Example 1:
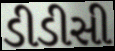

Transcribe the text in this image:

ડીડીસી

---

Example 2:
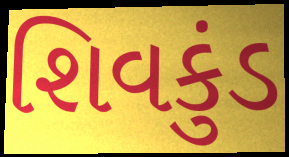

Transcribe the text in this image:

શિવકુંડ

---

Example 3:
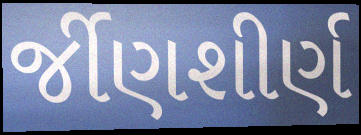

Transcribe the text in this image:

ર્જીણશીર્ણ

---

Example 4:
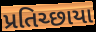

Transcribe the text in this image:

પ્રતિચ્છાયા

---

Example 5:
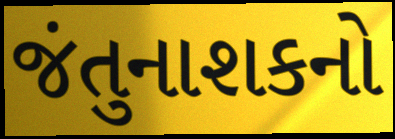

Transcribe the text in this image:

જંતુનાશકનો